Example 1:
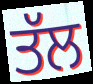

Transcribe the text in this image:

ਤੱਲ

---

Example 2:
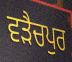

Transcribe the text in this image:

ਵੜੈਚਪੁਰ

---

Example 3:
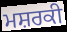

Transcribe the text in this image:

ਮਸ਼ਰਕੀ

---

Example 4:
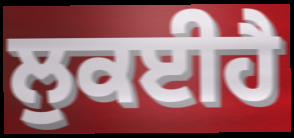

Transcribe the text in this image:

ਲੁਕਈਹੈ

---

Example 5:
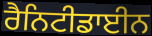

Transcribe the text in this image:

ਰੈਨਿਟੀਡਾਈਨ